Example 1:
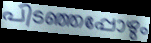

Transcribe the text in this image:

പിടഞ്ഞപ്പോഴും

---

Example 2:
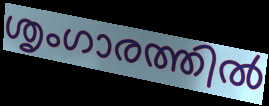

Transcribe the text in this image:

ശൃംഗാരത്തിൽ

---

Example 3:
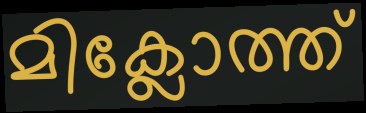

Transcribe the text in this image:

മിക്ലോത്ത്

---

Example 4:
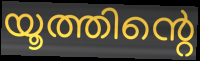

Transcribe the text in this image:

യൂത്തിന്റെ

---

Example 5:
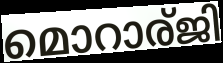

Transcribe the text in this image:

മൊറാര്ജി